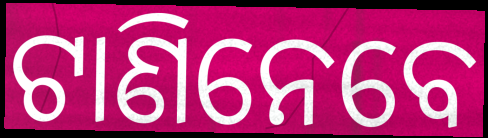
ଟାଣିନେବେ